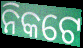
ନିକଟେ